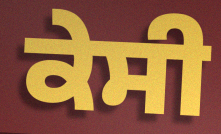
ਕੇਸੀ